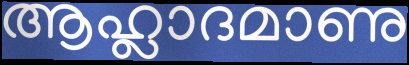
ആഹ്ലാദമാണു